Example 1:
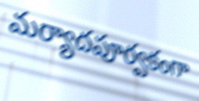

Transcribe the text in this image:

మర్యాదపూర్వకంగా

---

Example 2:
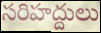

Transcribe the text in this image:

సరిహద్దులు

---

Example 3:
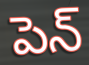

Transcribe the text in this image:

పెన్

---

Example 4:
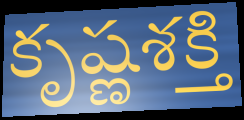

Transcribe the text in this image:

కృష్ణశక్తి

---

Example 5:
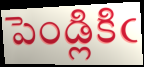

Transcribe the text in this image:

పెండ్లికిఁ